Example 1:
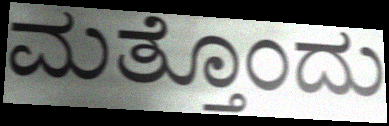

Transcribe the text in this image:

ಮತ್ತೊಂದು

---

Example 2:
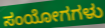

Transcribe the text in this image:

ಸಂಯೋಗಗಳು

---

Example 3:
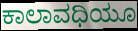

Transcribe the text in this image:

ಕಾಲಾವಧಿಯೂ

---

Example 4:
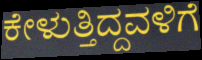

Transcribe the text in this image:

ಕೇಳುತ್ತಿದ್ದವಳಿಗೆ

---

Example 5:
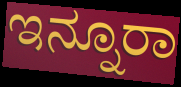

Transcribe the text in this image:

ಇನ್ನೂರಾ